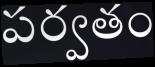
పర్వతం